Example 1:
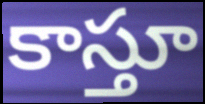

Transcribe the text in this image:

కాస్తూ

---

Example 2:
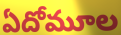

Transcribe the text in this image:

ఏదోమూల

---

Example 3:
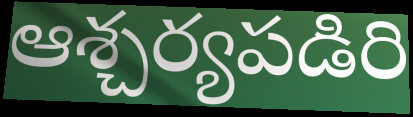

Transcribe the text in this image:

ఆశ్చర్యపడిరి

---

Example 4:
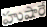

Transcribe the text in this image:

హుషారే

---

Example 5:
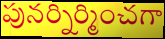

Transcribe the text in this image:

పునర్నిర్మించగా